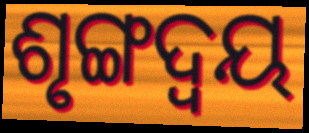
ଶୃଙ୍ଗଦ୍ୱୟ